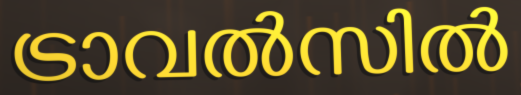
ട്രാവൽസിൽ